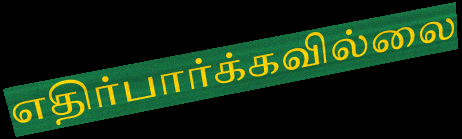
எதிர்பார்க்கவில்லை